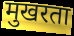
मुखरता